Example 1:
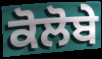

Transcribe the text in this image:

ਕੋਲੋਬੇ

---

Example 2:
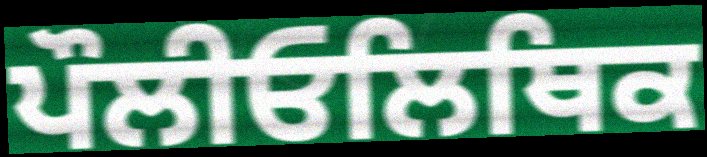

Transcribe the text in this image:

ਪੌਲੀਓਲਿਥਿਕ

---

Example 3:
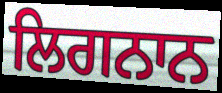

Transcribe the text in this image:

ਲਿਗਨਾਨ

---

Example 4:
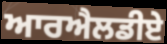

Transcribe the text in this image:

ਆਰਐਲਡੀਏ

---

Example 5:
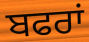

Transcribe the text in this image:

ਬਫਰਾਂ